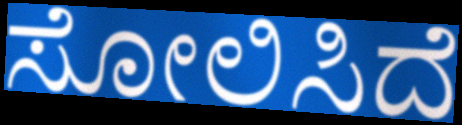
ಸೋಲಿಸಿದೆ